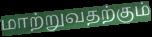
மாற்றுவதற்கும்